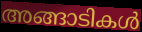
അങ്ങാടികൾ